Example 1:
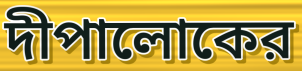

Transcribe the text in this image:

দীপালোকের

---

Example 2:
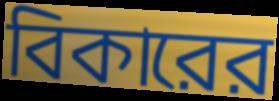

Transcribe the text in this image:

বিকারের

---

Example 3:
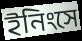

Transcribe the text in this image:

ইনিংসে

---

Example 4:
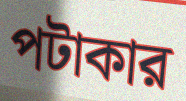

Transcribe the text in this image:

পটাকার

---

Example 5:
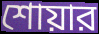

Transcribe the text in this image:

শোয়ার